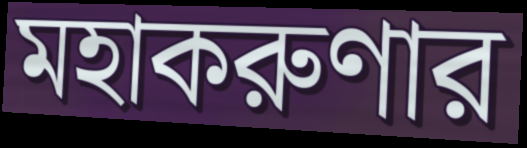
মহাকরুণার